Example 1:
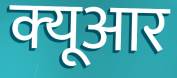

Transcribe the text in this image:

क्‍यूआर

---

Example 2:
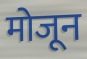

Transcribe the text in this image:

मोजून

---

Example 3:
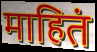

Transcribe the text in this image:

माहितं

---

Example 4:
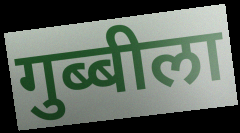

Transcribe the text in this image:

गुब्बीला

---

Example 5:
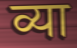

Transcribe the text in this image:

व्या